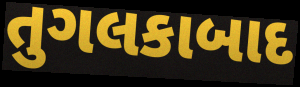
તુગલકાબાદ